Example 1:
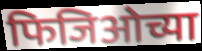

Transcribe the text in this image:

फिजिओच्या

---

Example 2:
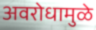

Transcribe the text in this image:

अवरोधामुळे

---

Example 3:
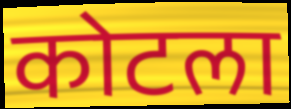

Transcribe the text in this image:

कोटला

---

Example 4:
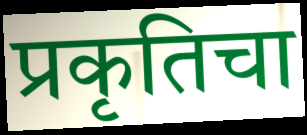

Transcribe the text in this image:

प्रकृतिचा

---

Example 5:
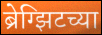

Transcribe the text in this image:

ब्रेग्झिटच्या